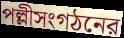
পল্লীসংগঠনের